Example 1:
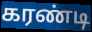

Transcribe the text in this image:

கரண்டி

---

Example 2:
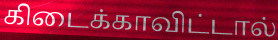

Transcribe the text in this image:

கிடைக்காவிட்டால்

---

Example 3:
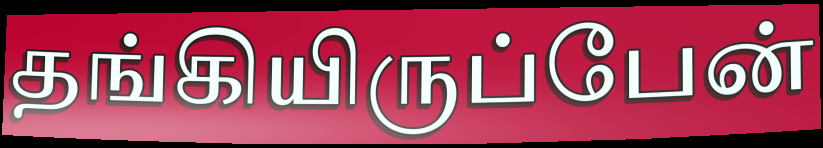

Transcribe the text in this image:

தங்கியிருப்பேன்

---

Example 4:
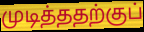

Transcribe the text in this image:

முடித்ததற்குப்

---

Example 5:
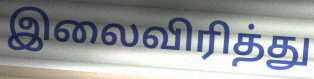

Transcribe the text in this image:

இலைவிரித்து